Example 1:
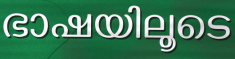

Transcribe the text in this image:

ഭാഷയിലൂടെ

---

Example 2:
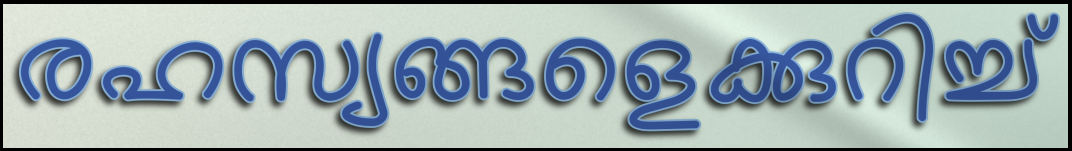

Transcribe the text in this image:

രഹസ്യങ്ങളെക്കുറിച്ച്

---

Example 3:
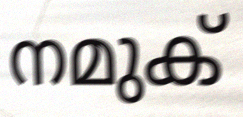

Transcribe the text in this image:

നമുക്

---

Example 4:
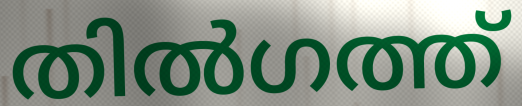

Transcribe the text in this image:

തിൽഗത്ത്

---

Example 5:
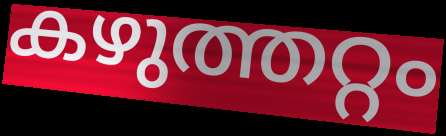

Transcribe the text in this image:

കഴുത്തറ്റം